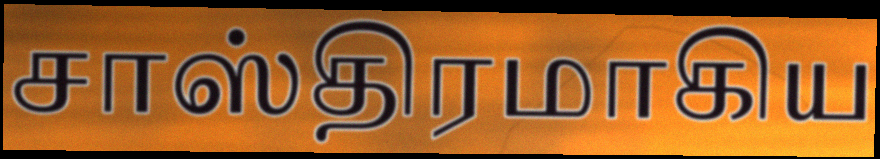
சாஸ்திரமாகிய